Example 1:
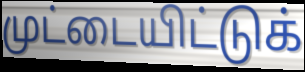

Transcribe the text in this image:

முட்டையிட்டுக்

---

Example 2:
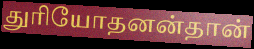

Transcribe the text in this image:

துரியோதனன்தான்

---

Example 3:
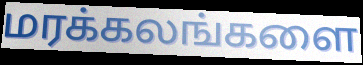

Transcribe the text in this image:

மரக்கலங்களை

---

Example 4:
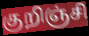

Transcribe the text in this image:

குறிஞ்சி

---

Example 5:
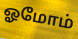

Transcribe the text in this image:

ஓமோம்